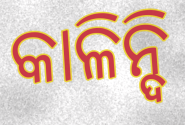
କାଳିନ୍ଦି